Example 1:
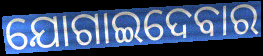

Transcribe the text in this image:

ଯୋଗାଇଦେବାର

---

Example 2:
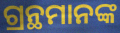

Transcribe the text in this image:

ଗ୍ରନ୍ଥମାନଙ୍କ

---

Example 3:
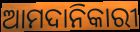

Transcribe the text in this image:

ଆମଦାନିକାରୀ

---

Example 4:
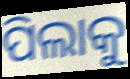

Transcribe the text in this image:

ପିଲାକୁ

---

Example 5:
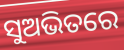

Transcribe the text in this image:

ସୁଅଭିତରେ